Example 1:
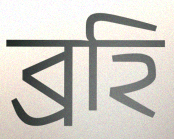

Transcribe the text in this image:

ব্রহি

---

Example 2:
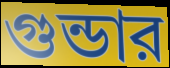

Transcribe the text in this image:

গুন্ডার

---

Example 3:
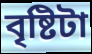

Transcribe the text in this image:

বৃষ্টিটা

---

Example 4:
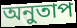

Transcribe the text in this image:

অনুতাপ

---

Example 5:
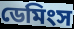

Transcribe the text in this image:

ডেমিংস